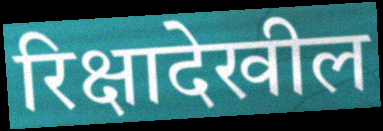
रिक्षादेखील